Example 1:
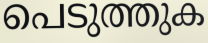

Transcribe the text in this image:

പെടുത്തുക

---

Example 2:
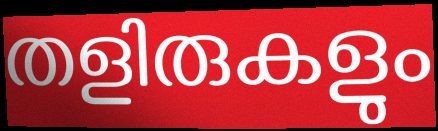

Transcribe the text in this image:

തളിരുകളും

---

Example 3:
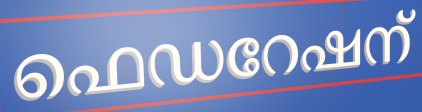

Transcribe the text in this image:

ഫെഡറേഷന്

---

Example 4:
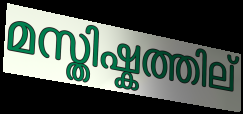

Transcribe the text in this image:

മസ്തിഷ്കത്തില്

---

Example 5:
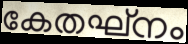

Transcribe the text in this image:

കേതഘ്നം